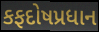
કફદોષપ્રધાન